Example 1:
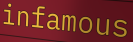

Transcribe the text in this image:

infamous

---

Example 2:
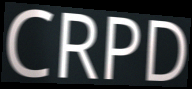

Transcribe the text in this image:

CRPD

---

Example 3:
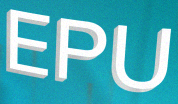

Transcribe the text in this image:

EPU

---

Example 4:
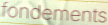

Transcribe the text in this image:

fondements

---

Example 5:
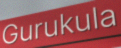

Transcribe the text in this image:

Gurukula